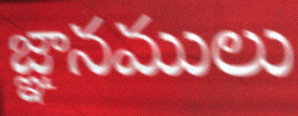
జ్ఞానములు